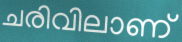
ചരിവിലാണ്